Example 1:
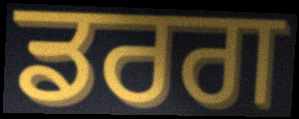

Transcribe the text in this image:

ਡਰਗ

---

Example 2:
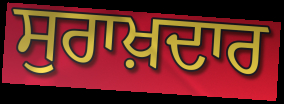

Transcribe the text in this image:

ਸੁਰਾਖ਼ਦਾਰ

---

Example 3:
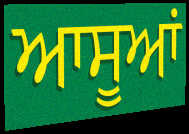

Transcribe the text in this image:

ਆਸੂਆਂ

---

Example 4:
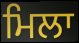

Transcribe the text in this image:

ਮਿਲਾ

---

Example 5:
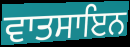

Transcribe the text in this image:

ਵਾਤਸਾਇਨ